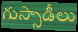
గుస్సాడీలు